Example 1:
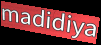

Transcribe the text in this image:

madidiya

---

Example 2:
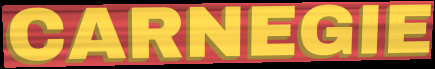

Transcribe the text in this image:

CARNEGIE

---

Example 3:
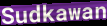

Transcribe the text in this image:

Sudkawan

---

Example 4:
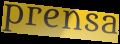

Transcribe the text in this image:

prensa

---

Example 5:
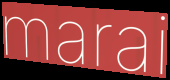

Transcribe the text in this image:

marai